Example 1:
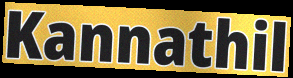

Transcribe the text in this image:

Kannathil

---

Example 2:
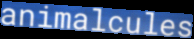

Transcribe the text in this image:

animalcules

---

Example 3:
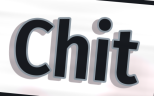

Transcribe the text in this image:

Chit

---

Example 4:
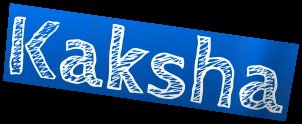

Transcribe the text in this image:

Kaksha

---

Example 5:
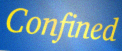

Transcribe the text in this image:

Confined